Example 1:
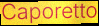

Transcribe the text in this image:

Caporetto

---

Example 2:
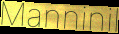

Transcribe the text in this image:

Manninil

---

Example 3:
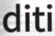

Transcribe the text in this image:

diti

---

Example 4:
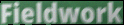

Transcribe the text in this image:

Fieldwork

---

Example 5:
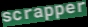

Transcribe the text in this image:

scrapper